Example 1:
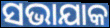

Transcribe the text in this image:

ସଭାଯାକ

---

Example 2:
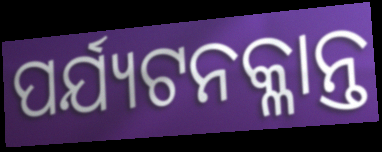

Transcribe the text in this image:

ପର୍ଯ୍ୟଟନକ୍ଳାନ୍ତ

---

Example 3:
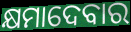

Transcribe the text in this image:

କ୍ଷମାଦେବାର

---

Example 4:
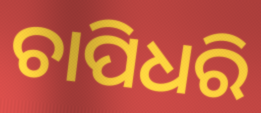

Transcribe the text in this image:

ଚାପିଧରି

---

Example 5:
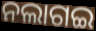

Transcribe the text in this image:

ନଲାଗଇ